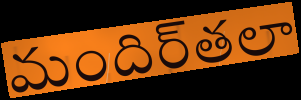
మందిర్‌తలా